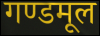
गण्डमूल